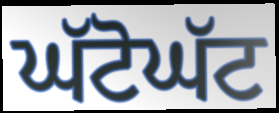
ਘੱਟੋਘੱਟ